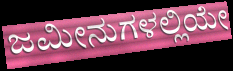
ಜಮೀನುಗಳಲ್ಲಿಯೇ